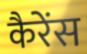
कैरेंस